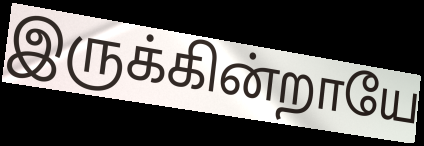
இருக்கின்றாயே